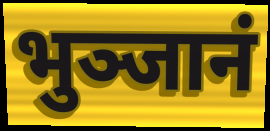
भुञ्जानं